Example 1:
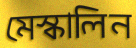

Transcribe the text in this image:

মেস্কালিন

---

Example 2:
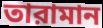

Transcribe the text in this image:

তারামান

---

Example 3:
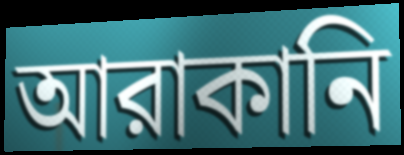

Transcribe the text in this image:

আরাকানি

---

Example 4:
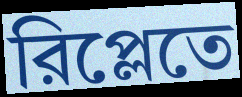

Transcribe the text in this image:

রিপ্লেতে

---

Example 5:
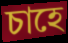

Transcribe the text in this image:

চাহে